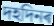
দহদিনৰ